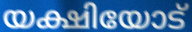
യക്ഷിയോട്